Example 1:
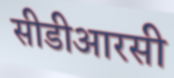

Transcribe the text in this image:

सीडीआरसी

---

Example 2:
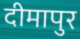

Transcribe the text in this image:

दीमापुर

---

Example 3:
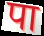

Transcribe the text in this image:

पा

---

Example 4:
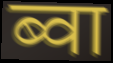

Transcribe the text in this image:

ब्वा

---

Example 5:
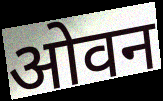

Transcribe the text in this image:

ओवन